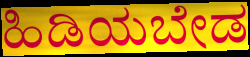
ಹಿಡಿಯಬೇಡ